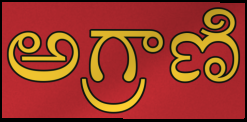
అగ్రాణి